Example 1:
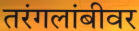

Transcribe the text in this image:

तरंगलांबीवर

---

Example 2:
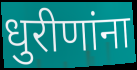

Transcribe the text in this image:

धुरीणांना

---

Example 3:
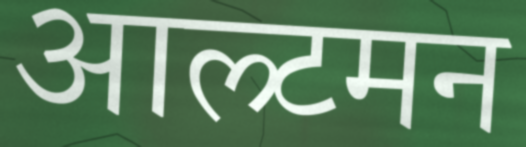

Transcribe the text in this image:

आल्टमन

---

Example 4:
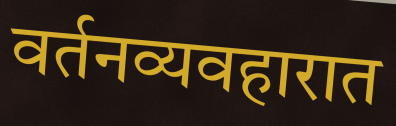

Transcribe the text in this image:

वर्तनव्यवहारात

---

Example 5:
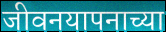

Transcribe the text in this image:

जीवनयापनाच्या